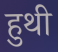
हुथी